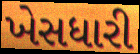
ખેસધારી